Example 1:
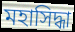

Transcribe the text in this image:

মহাসিদ্ধা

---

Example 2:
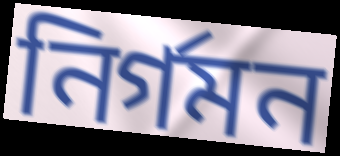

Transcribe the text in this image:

নিৰ্গমন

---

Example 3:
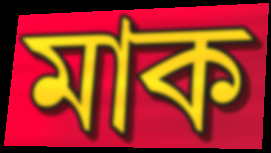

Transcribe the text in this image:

মাক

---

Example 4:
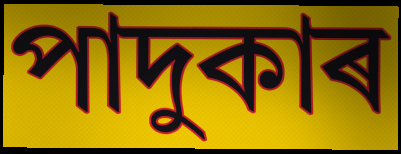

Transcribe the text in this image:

পাদুকাৰ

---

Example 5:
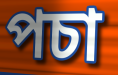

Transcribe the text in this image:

পচা